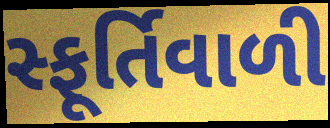
સ્ફૂર્તિવાળી